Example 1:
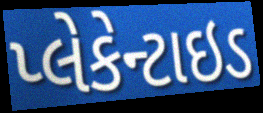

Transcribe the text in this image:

પ્લેકેન્ટાઇડ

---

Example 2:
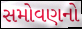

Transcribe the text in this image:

સમોવણનો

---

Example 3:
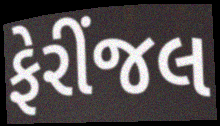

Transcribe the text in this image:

ફેરીંજલ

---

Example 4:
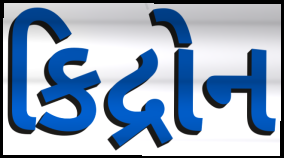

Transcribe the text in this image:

કિદ્રોન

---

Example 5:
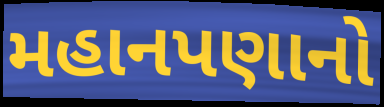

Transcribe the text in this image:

મહાનપણાનો